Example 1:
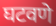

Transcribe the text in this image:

घटवणे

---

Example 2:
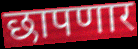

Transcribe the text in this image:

छापणार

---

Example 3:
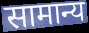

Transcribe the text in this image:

सामान्य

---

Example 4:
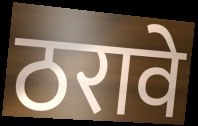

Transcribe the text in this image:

ठरावे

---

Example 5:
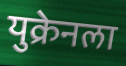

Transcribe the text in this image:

युक्रेनला